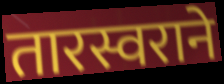
तारस्वराने